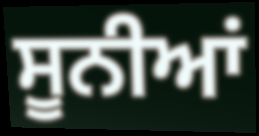
ਸੂਨੀਆਂ